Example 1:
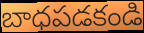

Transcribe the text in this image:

బాధపడకండి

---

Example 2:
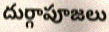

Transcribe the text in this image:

దుర్గాపూజలు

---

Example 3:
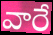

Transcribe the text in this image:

వారే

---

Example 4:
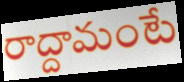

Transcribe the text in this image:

రాద్దామంటే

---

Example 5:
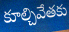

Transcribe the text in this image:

కూల్చివేతకు